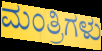
ಮಂತ್ರಿಗಳು